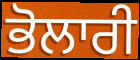
ਭੋਲਾਰੀ